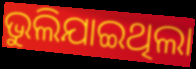
ଭୁଲିଯାଇଥିଲା